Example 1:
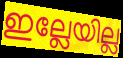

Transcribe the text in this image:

ഇല്ലേയില്ല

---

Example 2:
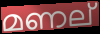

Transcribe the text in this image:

മണല്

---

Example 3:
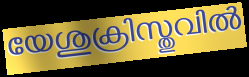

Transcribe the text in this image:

യേശുക്രിസ്തുവിൽ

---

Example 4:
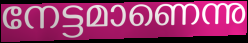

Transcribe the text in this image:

നേട്ടമാണെന്നു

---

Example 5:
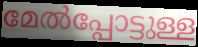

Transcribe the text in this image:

മേൽപ്പോട്ടുള്ള